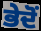
ਭੇਦੋਂ